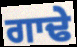
ਗਾਢੇ